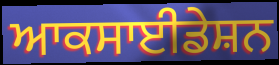
ਆਕਸਾਈਡੇਸ਼ਨ